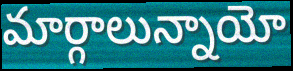
మార్గాలున్నాయో